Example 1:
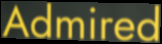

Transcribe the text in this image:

Admired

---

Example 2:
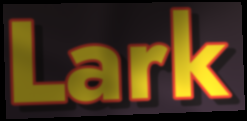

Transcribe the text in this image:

Lark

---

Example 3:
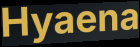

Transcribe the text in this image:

Hyaena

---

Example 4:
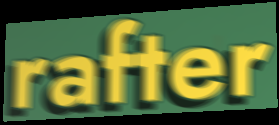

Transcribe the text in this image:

rafter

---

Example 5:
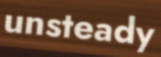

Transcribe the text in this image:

unsteady